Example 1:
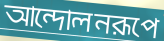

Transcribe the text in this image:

আন্দোলনরূপে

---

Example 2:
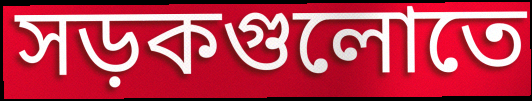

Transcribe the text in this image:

সড়কগুলোতে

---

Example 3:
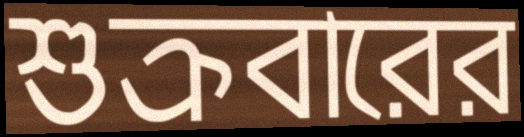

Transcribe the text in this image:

শুক্রবারের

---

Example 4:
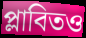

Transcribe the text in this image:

প্লাবিতও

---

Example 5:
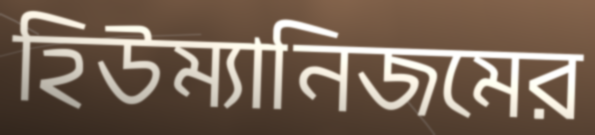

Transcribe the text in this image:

হিউম্যানিজমের